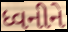
ધ્વનીને